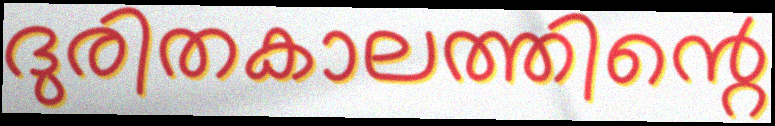
ദുരിതകാലത്തിന്റെ